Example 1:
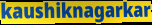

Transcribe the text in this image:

kaushiknagarkar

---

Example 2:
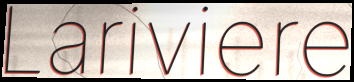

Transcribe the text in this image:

Lariviere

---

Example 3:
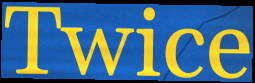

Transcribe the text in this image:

Twice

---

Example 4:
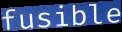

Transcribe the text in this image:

fusible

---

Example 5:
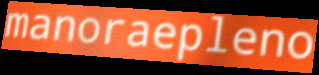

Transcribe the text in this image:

manoraepleno